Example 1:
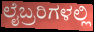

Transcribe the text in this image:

ಲೈಬ್ರರಿಗಳಲ್ಲಿ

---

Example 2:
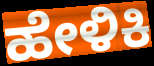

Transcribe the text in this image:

ಹೇಳಿಕಿ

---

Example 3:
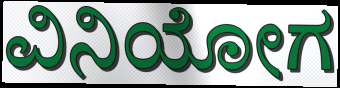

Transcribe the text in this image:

ವಿನಿಯೋಗ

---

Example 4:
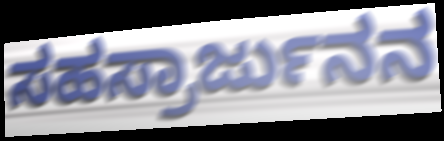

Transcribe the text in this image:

ಸಹಸ್ರಾರ್ಜುನನ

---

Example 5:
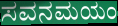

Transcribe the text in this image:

ಸವನಮಯಂ